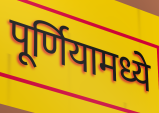
पूर्णियामध्ये